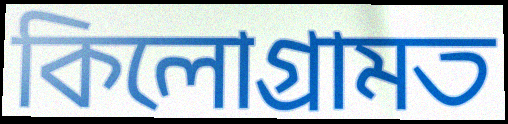
কিলোগ্ৰামত